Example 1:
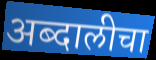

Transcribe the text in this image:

अब्दालीचा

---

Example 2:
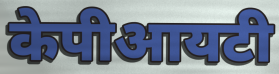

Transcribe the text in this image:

केपीआयटी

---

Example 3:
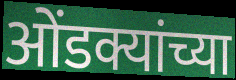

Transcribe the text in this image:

ओंडक्यांच्या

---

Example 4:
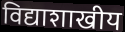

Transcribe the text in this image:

विद्याशाखीय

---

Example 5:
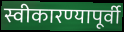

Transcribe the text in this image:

स्वीकारण्यापूर्वी